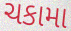
ચકામા